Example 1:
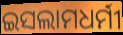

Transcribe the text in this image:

ଇସଲାମଧର୍ମୀ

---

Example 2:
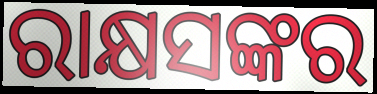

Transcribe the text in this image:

ରାକ୍ଷସଙ୍କର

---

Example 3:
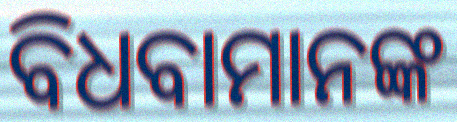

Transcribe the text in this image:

ବିଧବାମାନଙ୍କ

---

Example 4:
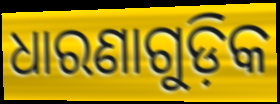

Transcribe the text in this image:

ଧାରଣାଗୁଡ଼ିକ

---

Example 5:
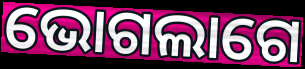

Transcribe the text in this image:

ଭୋଗଲାଗେ